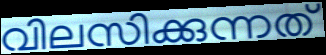
വിലസിക്കുന്നത്